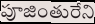
పూజింతురేని